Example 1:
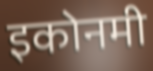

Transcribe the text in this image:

इकोनमी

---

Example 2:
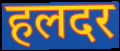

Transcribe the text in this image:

हलदर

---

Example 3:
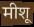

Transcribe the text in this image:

मीशू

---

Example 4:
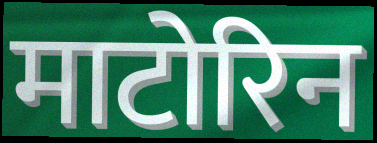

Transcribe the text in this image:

माटोरिन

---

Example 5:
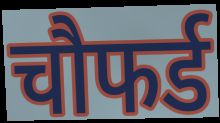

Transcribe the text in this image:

चौफर्ड